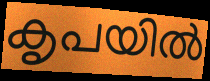
കൃപയിൽ